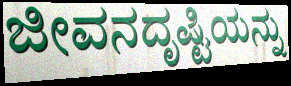
ಜೀವನದೃಷ್ಟಿಯನ್ನು